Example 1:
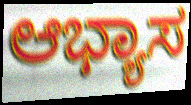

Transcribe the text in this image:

ಆಭ್ಯಾಸ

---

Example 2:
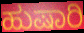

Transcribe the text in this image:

ಹುಷಾರಿ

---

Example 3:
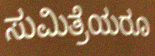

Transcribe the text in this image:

ಸುಮಿತ್ರೆಯರೂ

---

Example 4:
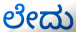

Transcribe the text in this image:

ಲೇದು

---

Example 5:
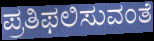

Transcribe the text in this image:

ಪ್ರತಿಫಲಿಸುವಂತೆ